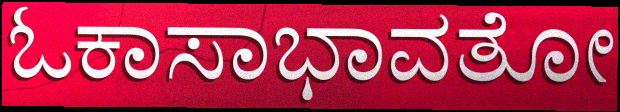
ಓಕಾಸಾಭಾವತೋ